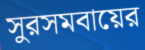
সুরসমবায়ের